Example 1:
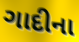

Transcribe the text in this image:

ગાદીના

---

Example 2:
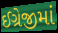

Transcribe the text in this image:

ઈગ્રેજીમાં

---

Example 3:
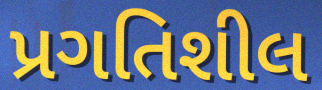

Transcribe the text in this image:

પ્રગતિશીલ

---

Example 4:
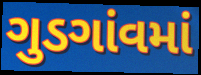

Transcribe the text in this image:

ગુડગાંવમાં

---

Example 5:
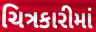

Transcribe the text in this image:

ચિત્રકારીમાં